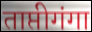
ताप्तीगंगा